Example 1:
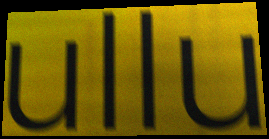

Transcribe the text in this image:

ullu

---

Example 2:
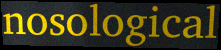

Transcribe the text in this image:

nosological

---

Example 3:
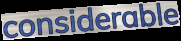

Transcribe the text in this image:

considerable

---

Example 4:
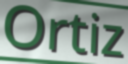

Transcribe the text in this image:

Ortiz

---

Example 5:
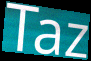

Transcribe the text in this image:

Taz